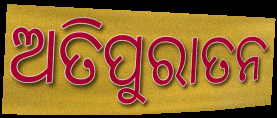
ଅତିପୁରାତନ